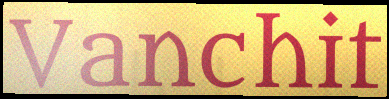
Vanchit